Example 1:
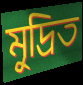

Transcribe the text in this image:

মুদ্ৰিত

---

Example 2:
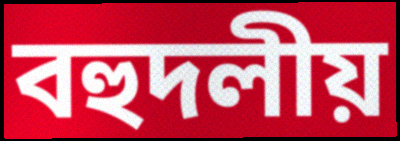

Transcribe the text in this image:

বহুদলীয়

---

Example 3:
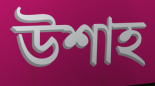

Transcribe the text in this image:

উশাহ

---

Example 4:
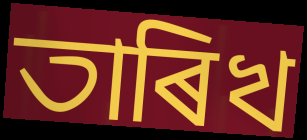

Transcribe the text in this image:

তাৰিখ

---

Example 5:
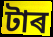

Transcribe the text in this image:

টাৰ